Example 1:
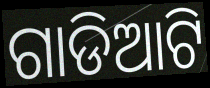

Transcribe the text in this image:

ଗାଡିଆଟି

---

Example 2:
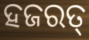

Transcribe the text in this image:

ହଜରତ୍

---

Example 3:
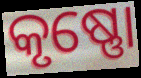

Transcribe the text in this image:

କୃଷ୍ଣୋ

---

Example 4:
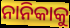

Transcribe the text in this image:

ନାନିକାକୁ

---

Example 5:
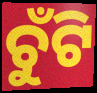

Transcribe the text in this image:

ଚୁଁଟି